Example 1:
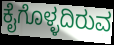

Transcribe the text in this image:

ಕೈಗೊಳ್ಳದಿರುವ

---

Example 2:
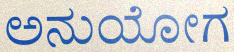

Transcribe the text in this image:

ಅನುಯೋಗ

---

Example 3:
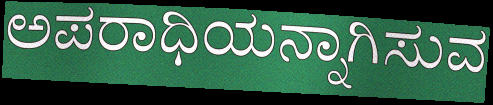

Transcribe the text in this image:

ಅಪರಾಧಿಯನ್ನಾಗಿಸುವ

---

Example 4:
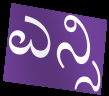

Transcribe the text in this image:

ಎನ್ಸಿ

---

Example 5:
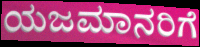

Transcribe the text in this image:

ಯಜಮಾನರಿಗೆ